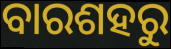
ବାରଶହରୁ